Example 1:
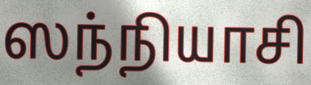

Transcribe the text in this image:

ஸந்நியாசி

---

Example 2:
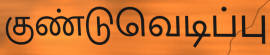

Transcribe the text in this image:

குண்டுவெடிப்பு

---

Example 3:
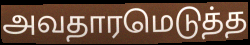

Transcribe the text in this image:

அவதாரமெடுத்த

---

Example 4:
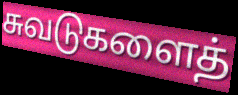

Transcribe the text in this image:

சுவடுகளைத்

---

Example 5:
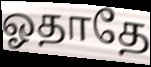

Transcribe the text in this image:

ஓதாதே